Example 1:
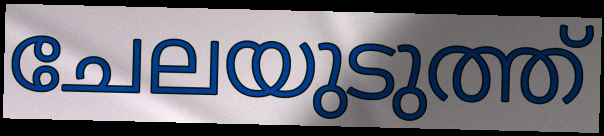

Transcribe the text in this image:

ചേലയുടുത്ത്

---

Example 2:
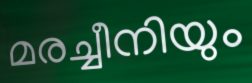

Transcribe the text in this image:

മരച്ചീനിയും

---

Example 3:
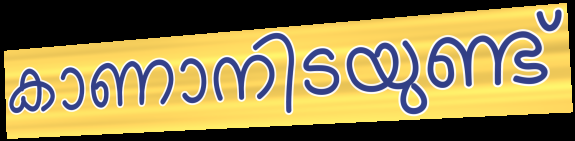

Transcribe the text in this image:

കാണാനിടയുണ്ട്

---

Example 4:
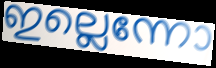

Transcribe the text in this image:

ഇല്ലെന്നോ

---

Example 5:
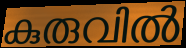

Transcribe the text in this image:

കുരുവിൽ